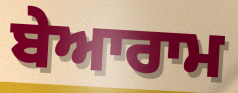
ਬੇਆਰਾਮ